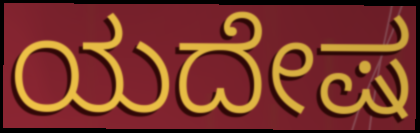
ಯದೇಷ